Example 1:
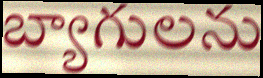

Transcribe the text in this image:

బ్యాగులను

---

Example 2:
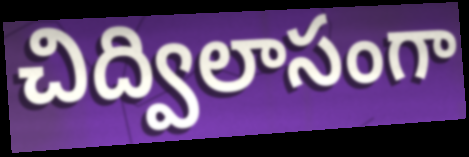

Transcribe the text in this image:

చిద్విలాసంగా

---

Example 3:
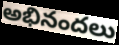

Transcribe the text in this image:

అభినందలు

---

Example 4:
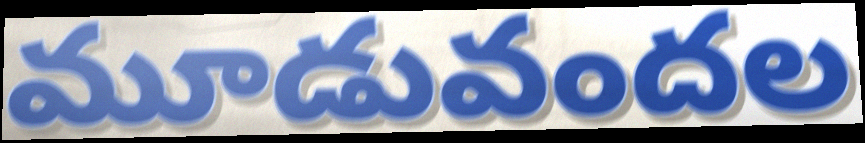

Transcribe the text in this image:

మూడువందల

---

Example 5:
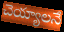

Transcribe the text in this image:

చెయ్యాలనే